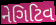
નેગિટિવ